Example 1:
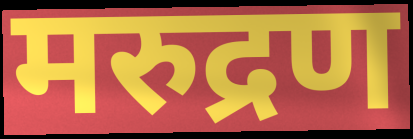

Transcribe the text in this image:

मरुद्रण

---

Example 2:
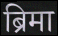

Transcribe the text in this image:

ब्रिमा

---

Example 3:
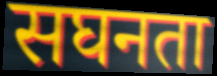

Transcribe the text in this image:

सघनता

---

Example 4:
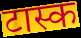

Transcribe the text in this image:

टास्क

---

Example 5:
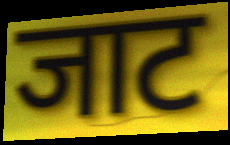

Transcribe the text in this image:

जाट